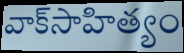
వాక్‌సాహిత్యం